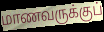
மாணவருக்குப்